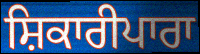
ਸ਼ਿਕਾਰੀਪਾਰਾ